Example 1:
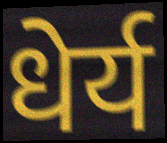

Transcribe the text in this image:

धेर्य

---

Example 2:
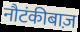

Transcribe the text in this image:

नौटंकीबाज़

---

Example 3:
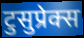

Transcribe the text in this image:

टुसुप्रेक्स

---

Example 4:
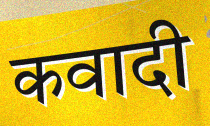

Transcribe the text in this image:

कवादी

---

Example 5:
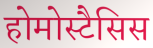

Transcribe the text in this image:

होमोस्टैसिस